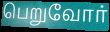
பெறுவோர்